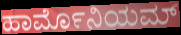
ಹಾರ್ಮೊನಿಯಮ್